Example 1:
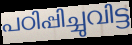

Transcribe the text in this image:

പഠിപ്പിച്ചുവിട്ട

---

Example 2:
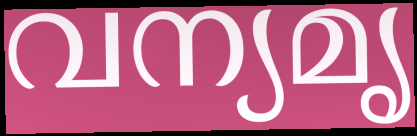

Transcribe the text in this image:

വന്യമൃ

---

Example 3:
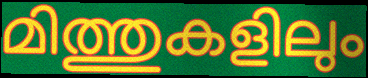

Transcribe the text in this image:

മിത്തുകളിലും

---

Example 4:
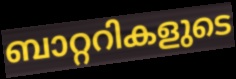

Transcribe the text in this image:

ബാറ്ററികളുടെ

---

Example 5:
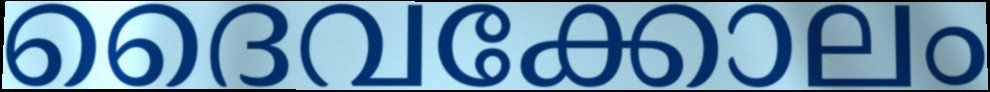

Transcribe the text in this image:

ദൈവക്കോലം